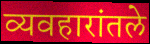
व्यवहारांतले